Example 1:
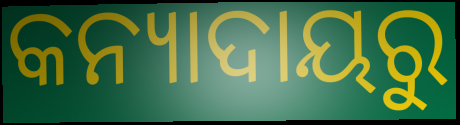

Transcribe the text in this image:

କନ୍ୟାଦାୟରୁ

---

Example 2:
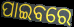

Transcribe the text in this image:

ପାଇବରେ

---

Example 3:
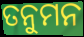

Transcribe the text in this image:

ତନୁମନ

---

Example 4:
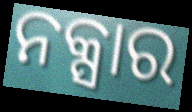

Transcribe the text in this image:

ନକ୍ସାର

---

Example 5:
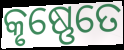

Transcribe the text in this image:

କୃଷ୍ଣେତେ